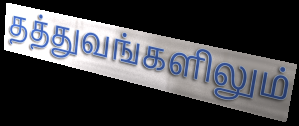
தத்துவங்களிலும்